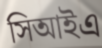
সিআইএ